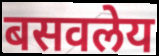
बसवलेय